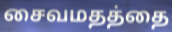
சைவமதத்தை